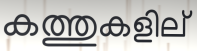
കത്തുകളില്